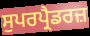
ਸੁਪਰਪ੍ਰੈਡਰਜ਼